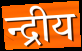
न्द्रीय